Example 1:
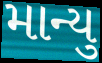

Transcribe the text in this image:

માન્યુ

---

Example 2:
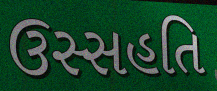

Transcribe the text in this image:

ઉસ્સહતિ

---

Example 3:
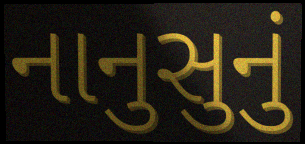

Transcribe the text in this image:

નાનુસુનું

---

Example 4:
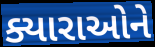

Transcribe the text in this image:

ક્યારાઓને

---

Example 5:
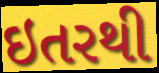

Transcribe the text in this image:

ઇતરથી